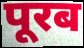
पूरब